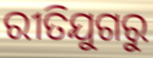
ରୀତିଯୁଗରୁ